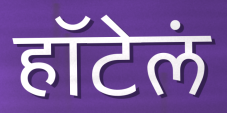
हॉटेलं